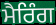
ਮੈਰਿੰਗ